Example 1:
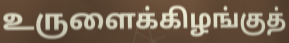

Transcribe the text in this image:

உருளைக்கிழங்குத்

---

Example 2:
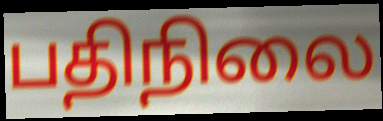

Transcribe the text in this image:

பதிநிலை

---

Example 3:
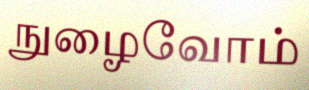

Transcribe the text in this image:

நுழைவோம்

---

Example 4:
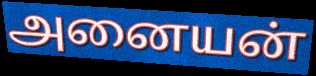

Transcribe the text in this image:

அனையன்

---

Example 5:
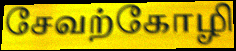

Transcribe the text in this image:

சேவற்கோழி